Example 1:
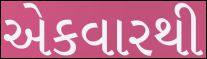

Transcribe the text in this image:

એકવારથી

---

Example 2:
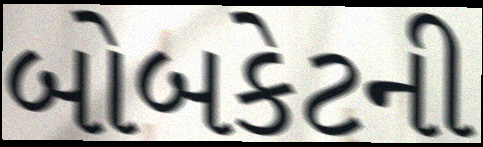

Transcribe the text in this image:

બોબકેટની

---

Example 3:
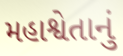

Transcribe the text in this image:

મહાશ્વેતાનું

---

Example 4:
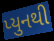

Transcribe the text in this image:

પ્યુનથી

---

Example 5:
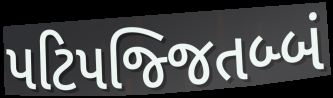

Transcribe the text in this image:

પટિપજ્જિતબ્બં